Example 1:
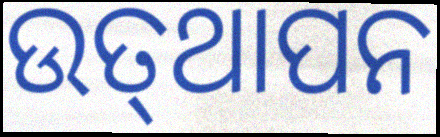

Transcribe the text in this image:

ଉତ୍‌ଥାପନ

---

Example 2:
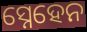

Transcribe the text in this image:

ସ୍ନେହେନ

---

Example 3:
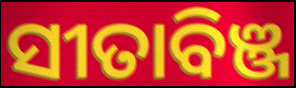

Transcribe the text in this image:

ସୀତାବିଞ୍ଜ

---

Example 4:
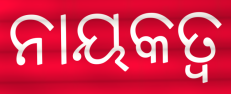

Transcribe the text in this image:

ନାୟକତ୍ୱ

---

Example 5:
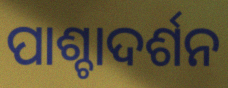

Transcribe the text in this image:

ପାଶ୍ଚାଦର୍ଶନ